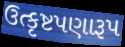
ઉત્કૃષ્ટપણારૂપ